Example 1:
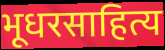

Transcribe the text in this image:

भूधरसाहित्य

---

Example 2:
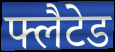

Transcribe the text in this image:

फ्लैटेड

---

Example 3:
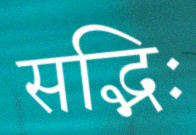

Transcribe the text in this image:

सद्भिः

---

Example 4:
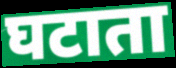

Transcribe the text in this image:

घटाता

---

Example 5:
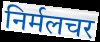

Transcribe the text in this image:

निर्मलचर